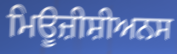
ਮਿਊਜ਼ੀਸ਼ੀਅਨਸ